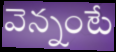
వెన్నంటే